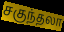
சகுந்தலா